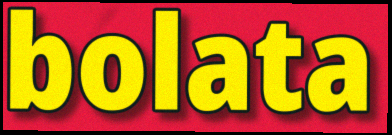
bolata